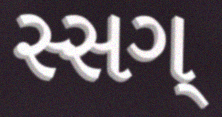
સ્સગ્